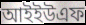
আইইউএফ